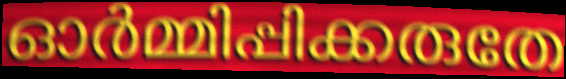
ഓർമ്മിപ്പിക്കരുതേ